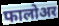
फालोअर